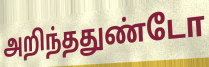
அறிந்ததுண்டோ